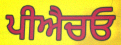
ਪੀਐਚਓ